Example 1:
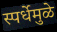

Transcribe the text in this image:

स्पर्धेमुळे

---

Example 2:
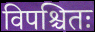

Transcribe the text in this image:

विपश्चितः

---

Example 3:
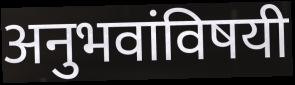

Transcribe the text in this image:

अनुभवांविषयी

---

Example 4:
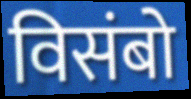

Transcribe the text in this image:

विसंबो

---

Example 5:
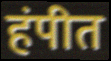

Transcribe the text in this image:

हंपीत